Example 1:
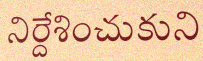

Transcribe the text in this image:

నిర్దేశించుకుని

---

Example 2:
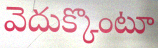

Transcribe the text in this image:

వెదుక్కొంటూ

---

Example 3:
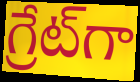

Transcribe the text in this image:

గ్రేట్‌గా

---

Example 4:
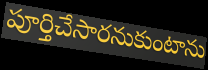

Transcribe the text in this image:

పూర్తిచేసారనుకుంటాను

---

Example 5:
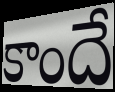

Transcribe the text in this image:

కాందే